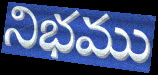
నిభము